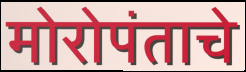
मोरोपंताचे